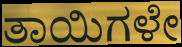
ತಾಯಿಗಳೇ